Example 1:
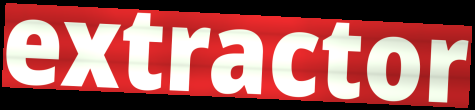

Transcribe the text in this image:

extractor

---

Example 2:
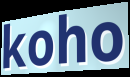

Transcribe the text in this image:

koho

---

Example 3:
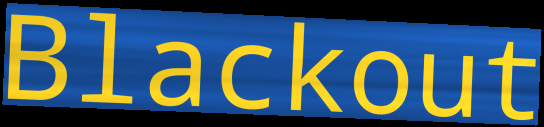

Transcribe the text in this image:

Blackout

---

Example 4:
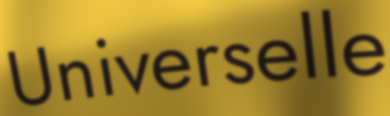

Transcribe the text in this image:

Universelle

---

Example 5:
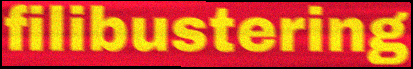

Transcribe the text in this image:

filibustering